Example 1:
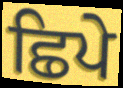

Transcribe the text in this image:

ਛਿਪੇ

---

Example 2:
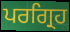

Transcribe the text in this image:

ਪਰਗ੍ਰਿਹ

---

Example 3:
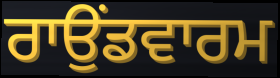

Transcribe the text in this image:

ਰਾਉਂਡਵਾਰਮ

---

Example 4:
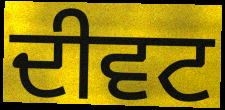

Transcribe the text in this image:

ਦੀਵਟ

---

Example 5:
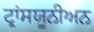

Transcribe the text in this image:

ਟ੍ਰਾਂਸਯੂਨੀਅਨ